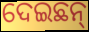
ଦେଇଛନ୍